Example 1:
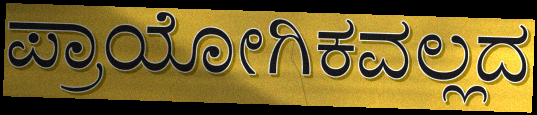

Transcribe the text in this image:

ಪ್ರಾಯೋಗಿಕವಲ್ಲದ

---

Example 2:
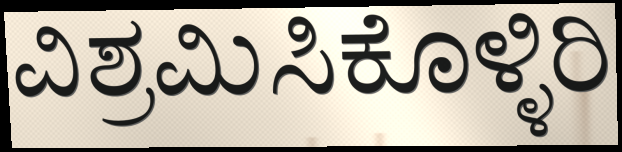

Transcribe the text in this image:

ವಿಶ್ರಮಿಸಿಕೊಳ್ಳಿರಿ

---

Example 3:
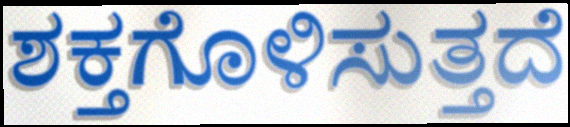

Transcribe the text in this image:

ಶಕ್ತಗೊಳಿಸುತ್ತದೆ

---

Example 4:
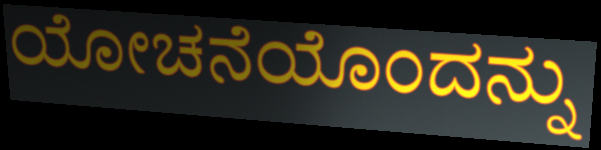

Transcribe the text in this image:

ಯೋಚನೆಯೊಂದನ್ನು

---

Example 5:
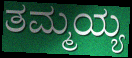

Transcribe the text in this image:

ತಮ್ಮಯ್ಯ